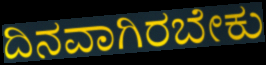
ದಿನವಾಗಿರಬೇಕು